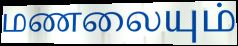
மணலையும்